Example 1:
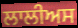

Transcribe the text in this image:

ਲਾਲੀਅਸ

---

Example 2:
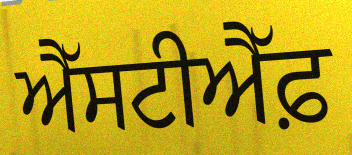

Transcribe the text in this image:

ਐੱਸਟੀਐੱਫ਼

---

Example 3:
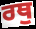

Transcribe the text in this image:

ਰਥੁ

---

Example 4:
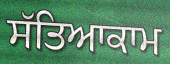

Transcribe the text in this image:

ਸੱਤਿਆਕਾਮ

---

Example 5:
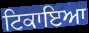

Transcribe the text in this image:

ਟਿਕਾਇਆ